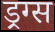
ड्रग्स